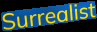
Surrealist